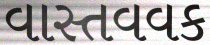
વાસ્તવવક